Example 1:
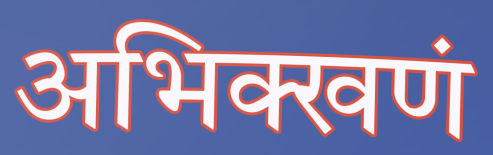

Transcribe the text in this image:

अभिक्खणं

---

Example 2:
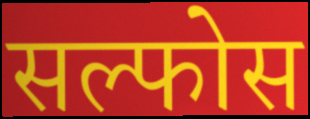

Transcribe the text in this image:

सल्फोस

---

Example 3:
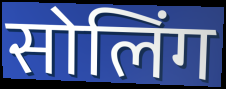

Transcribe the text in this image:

सोलिंग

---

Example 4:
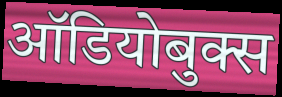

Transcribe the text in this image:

ऑडियोबुक्स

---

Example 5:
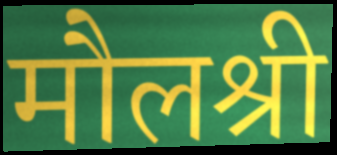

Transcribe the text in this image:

मौलश्री